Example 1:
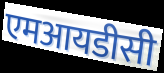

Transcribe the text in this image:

एमआयडीसी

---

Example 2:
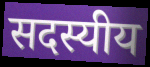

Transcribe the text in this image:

सदस्यीय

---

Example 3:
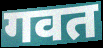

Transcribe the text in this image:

गवत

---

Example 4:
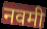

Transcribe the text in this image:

नवमी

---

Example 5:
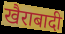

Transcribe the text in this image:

खैराबादी